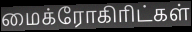
மைக்ரோகிரிட்கள்